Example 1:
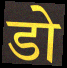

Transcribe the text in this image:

डो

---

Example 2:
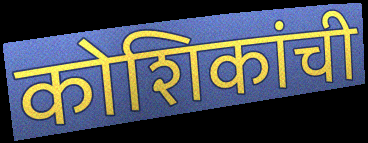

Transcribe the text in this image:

कोशिकांची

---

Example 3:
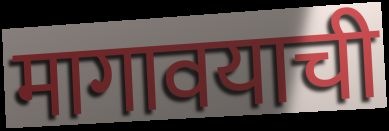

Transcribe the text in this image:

मागावयाची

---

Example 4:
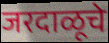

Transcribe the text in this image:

जरदाळूचे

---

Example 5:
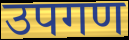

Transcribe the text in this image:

उपगण